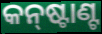
କନ୍‌ଷ୍ଟାଣ୍ଟ